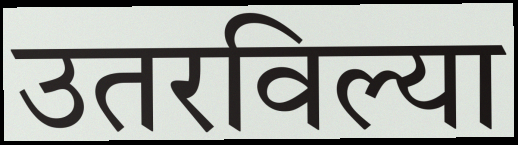
उतरविल्या